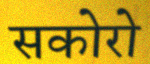
सकोरो